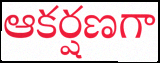
ఆకర్షణగా